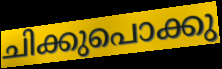
ചിക്കുപൊക്കു